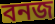
বনজ